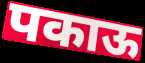
पकाऊ